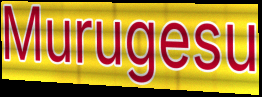
Murugesu